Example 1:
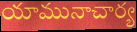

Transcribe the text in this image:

యామునాచార్య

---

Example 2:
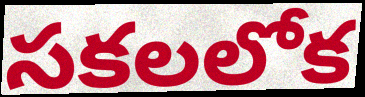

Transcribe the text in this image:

సకలలోక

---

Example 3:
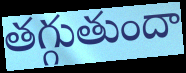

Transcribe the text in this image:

తగ్గుతుందా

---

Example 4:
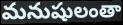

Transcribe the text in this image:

మనుషులంతా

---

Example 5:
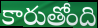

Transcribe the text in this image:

కారుతోంది